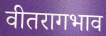
वीतरागभाव